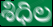
శిధిల